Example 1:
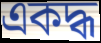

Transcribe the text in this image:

একদ্ধ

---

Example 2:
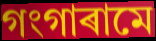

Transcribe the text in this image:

গংগাৰামে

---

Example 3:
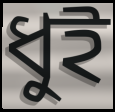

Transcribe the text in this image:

ধুই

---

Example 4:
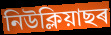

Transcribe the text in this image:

নিউক্লিয়াছৰ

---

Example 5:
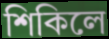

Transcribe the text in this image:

শিকিলে